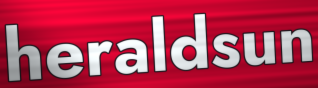
heraldsun